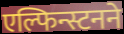
एल्फिन्स्टनने